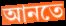
আনতে